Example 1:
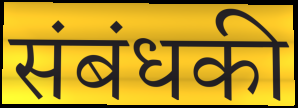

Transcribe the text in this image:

संबंधकी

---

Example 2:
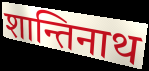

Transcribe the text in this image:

शान्तिनाथ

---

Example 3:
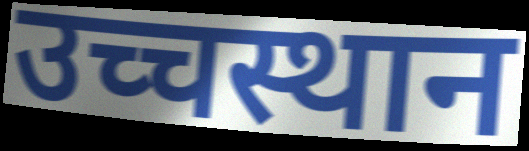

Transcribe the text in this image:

उच्चस्थान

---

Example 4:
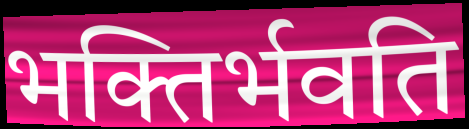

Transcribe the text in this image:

भक्तिर्भवति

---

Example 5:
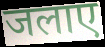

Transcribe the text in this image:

जलाए